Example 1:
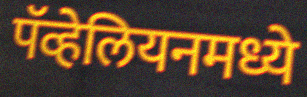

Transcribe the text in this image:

पॅव्हेलियनमध्ये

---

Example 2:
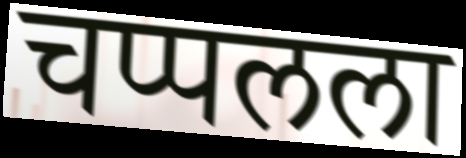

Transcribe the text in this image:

चप्पलला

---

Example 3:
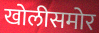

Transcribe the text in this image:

खोलीसमोर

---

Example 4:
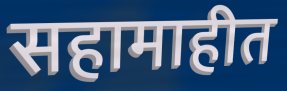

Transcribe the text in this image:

सहामाहीत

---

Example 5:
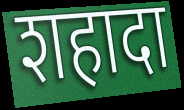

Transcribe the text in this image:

शहादा